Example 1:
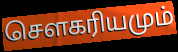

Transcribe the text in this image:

சௌகரியமும்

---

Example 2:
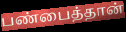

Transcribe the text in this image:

பண்பைத்தான்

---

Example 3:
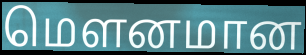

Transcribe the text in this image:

மௌனமான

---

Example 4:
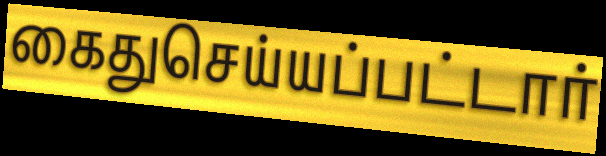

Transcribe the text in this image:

கைதுசெய்யப்பட்டார்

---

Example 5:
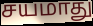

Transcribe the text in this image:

சயமாது